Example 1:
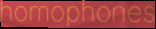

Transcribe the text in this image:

homophones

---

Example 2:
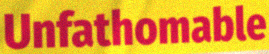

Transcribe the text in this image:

Unfathomable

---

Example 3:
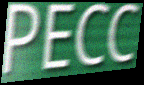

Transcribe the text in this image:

PECC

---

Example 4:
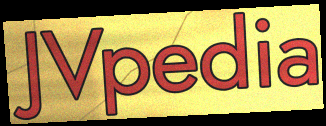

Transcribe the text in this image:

JVpedia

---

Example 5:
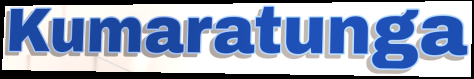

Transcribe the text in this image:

Kumaratunga